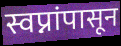
स्वप्नांपासून